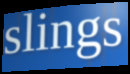
slings